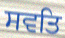
ਸਵਤਿ